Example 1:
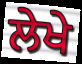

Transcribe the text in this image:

ਲੇਖੇ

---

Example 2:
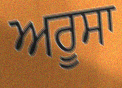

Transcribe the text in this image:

ਅਰੂਸਾ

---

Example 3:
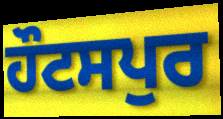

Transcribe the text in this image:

ਹੌਟਸਪੁਰ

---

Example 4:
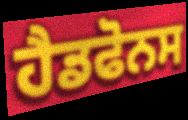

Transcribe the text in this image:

ਹੈਡਫੋਨਸ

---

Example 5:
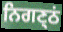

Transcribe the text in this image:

ਨਿਗਣ੍ਠਂ